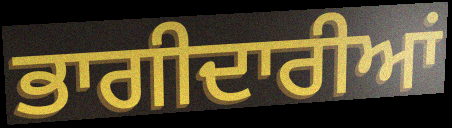
ਭਾਗੀਦਾਰੀਆਂ